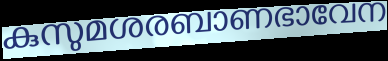
കുസുമശരബാണഭാവേന